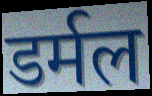
डर्मल